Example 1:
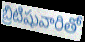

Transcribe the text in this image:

బ్రిటిషువారితో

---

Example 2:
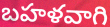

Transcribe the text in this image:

బహళవాగి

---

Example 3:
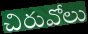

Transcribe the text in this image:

చిరువోలు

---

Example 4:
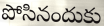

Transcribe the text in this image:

పోసినందుకు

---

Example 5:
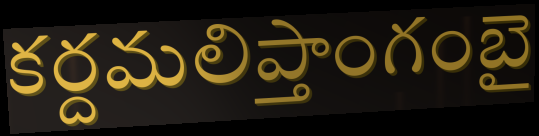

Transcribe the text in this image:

కర్దమలిప్తాంగంబై